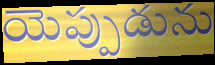
యెప్పుడును